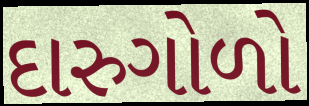
દારુગોળો